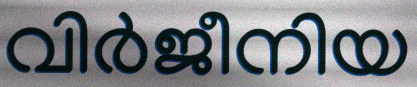
വിർജീനിയ